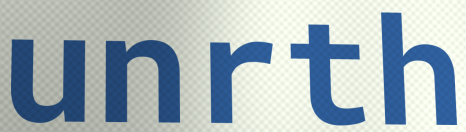
unrth